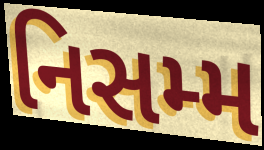
નિસમ્મ